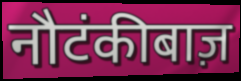
नौटंकीबाज़